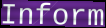
Inform